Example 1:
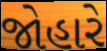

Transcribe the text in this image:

જોહારે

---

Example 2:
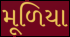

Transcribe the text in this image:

મૂળિયા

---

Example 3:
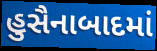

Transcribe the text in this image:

હુસૈનાબાદમાં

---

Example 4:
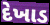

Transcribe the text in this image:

દેખાડ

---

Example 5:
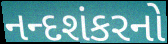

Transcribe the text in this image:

નન્દશંકરનો